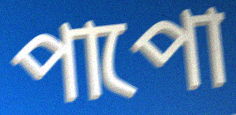
পাপো